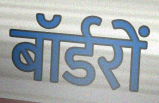
बॉर्डरों